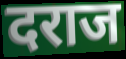
दराज